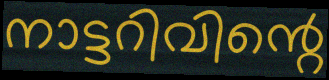
നാട്ടറിവിന്റെ